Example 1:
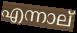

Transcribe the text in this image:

എന്നാല്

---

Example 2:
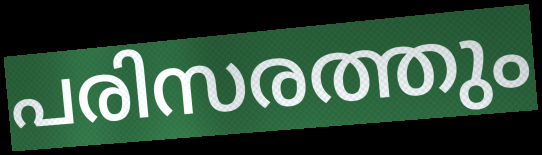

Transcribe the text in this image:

പരിസരത്തും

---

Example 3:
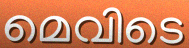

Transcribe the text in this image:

മെവിടെ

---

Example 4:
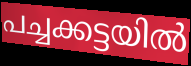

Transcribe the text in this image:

പച്ചക്കട്ടയിൽ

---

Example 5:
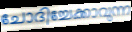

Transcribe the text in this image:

ചോദിച്ചേക്കാവുന്ന